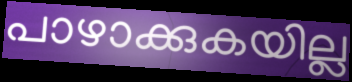
പാഴാക്കുകയില്ല